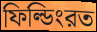
ফিল্ডিংরত